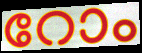
റോം